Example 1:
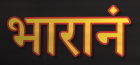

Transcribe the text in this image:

भारानं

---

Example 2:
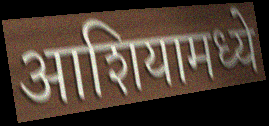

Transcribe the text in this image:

आशियामध्ये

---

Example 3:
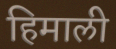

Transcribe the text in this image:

हिमाली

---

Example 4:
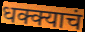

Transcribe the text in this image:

धक्क्याचं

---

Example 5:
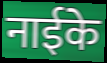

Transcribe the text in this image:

नाईके